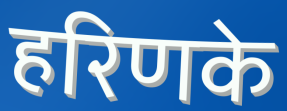
हरिणके